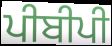
ਪੀਬੀਪੀ